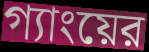
গ্যাংয়ের